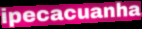
ipecacuanha